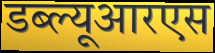
डब्ल्यूआरएस